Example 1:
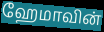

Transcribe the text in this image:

ஹேமாவின்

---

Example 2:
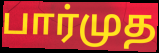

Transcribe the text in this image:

பார்முத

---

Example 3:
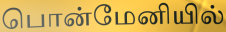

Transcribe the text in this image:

பொன்மேனியில்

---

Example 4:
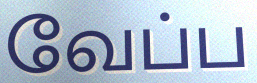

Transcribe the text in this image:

வேப்ப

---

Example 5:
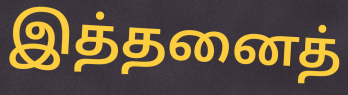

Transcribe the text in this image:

இத்தனைத்